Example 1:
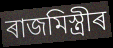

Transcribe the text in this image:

ৰাজমিস্ত্ৰীৰ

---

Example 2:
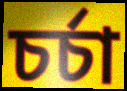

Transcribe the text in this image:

চৰ্চা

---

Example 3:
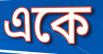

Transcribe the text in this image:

একে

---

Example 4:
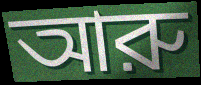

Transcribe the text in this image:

আৰু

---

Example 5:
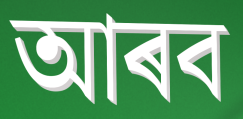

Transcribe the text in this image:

আৰব